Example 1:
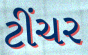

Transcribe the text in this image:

ટીંચર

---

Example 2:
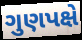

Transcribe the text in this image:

ગુણપક્ષે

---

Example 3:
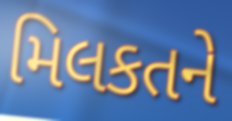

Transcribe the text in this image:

મિલકતને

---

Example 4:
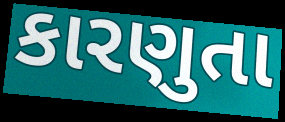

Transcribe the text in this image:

કારણુતા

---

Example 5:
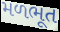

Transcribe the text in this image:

મળભૂત